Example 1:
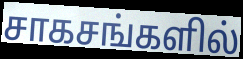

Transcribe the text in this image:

சாகசங்களில்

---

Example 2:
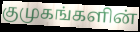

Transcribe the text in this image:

குமுகங்களின்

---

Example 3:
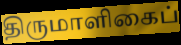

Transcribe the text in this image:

திருமாளிகைப்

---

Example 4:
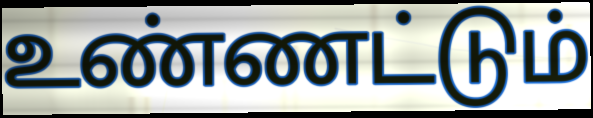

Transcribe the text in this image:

உண்ணட்டும்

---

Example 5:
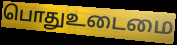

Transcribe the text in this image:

பொதுஉடைமை